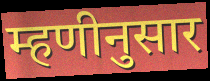
म्हणीनुसार